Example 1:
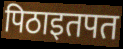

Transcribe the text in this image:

पिठाइतपत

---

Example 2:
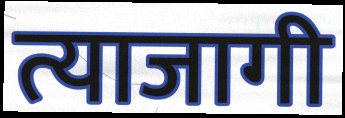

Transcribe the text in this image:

त्याजागी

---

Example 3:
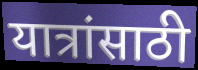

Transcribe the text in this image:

यात्रांसाठी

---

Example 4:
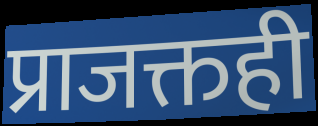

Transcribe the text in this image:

प्राजक्तही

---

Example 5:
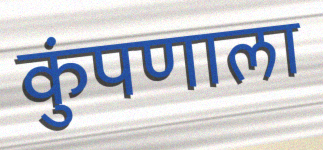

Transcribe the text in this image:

कुंपणाला